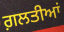
ਗ਼ਲਤੀਆਂ